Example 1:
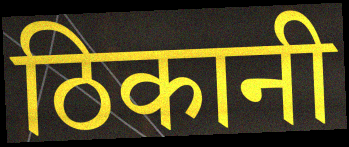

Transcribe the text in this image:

ठिकानी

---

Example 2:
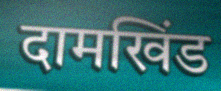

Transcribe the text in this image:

दामखिंड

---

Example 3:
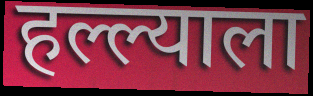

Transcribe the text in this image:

हल्ल्याला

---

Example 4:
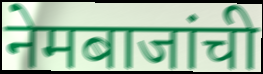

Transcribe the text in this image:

नेमबाजांची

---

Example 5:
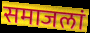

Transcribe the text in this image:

समाजलां